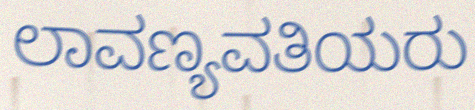
ಲಾವಣ್ಯವತಿಯರು